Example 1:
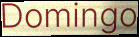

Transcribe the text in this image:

Domingo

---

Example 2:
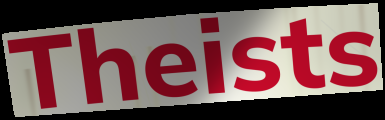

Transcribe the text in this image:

Theists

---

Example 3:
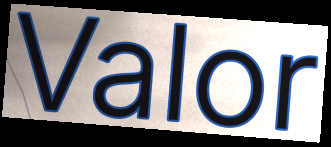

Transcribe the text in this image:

Valor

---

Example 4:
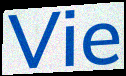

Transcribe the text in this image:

Vie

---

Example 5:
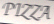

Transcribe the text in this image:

PIZZA